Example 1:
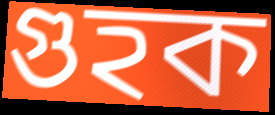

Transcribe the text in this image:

গুহক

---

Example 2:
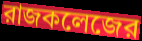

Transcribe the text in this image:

রাজকলেজের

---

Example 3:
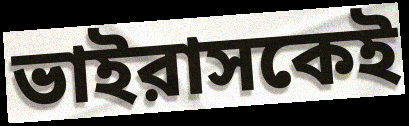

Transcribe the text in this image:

ভাইরাসকেই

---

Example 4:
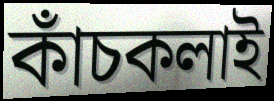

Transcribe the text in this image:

কাঁচকলাই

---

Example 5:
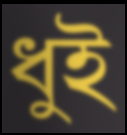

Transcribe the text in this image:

ধুই